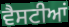
ਵੈਸਟੀਆਂ